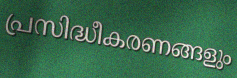
പ്രസിദ്ധീകരണങ്ങളും